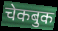
चेकबुक